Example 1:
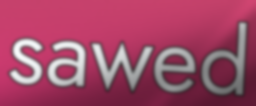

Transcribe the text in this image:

sawed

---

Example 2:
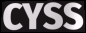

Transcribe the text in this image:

CYSS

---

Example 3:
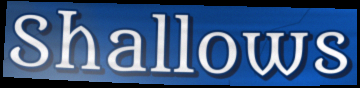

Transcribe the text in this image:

Shallows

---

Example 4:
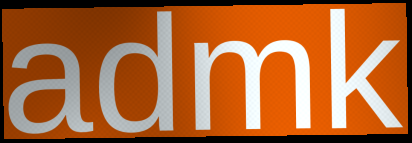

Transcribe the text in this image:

admk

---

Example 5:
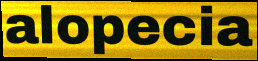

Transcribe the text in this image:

alopecia